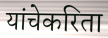
यांचेकरिता